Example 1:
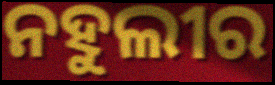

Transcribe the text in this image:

ନହୁଲୀର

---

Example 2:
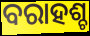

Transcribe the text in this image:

ବରାହଶ୍ଚ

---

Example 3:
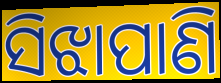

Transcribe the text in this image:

ସିଝାପାଣି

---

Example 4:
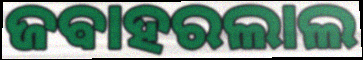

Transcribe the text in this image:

ଜଵାହରଲାଲ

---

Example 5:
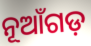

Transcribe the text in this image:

ନୂଆଁଗଡ଼